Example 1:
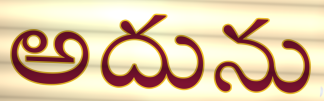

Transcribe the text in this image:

అదును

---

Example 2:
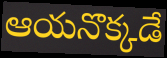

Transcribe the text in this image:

ఆయనొక్కడే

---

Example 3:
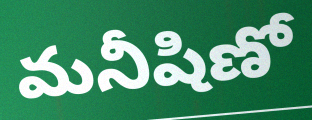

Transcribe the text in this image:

మనీషిణో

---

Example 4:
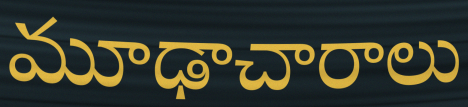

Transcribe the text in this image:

మూఢాచారాలు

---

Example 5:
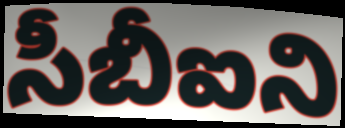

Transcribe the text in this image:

సీబీఐని